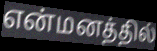
என்மனத்தில்